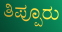
ತಿಪ್ಪೂರು